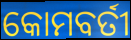
କୋମବର୍ତୀ